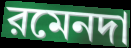
রমেনদা